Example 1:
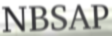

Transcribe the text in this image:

NBSAP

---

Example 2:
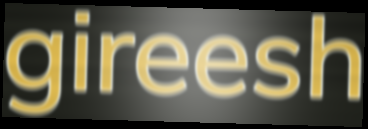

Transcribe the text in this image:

gireesh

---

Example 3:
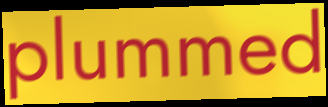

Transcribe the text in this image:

plummed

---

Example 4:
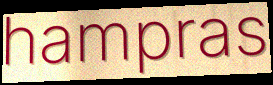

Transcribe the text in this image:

hampras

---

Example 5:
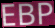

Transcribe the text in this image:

EBP